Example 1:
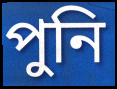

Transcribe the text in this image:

পুনি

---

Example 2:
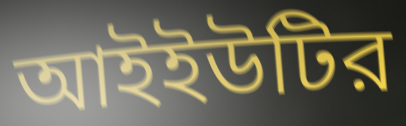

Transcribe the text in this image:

আইইউটির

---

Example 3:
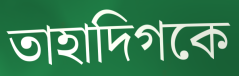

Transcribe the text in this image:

তাহাদিগকে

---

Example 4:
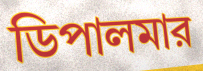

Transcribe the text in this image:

ডিপালমার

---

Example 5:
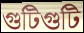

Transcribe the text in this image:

গুটিগুটি